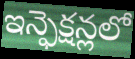
ఇన్ఫెక్షన్లలో